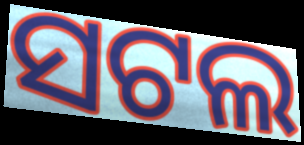
ସଟଲ